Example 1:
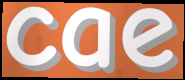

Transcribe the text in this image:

cae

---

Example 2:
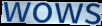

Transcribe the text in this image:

wows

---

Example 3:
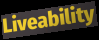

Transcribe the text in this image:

Liveability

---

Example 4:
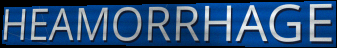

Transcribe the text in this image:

HEAMORRHAGE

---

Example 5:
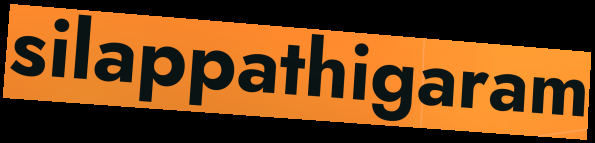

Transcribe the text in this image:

silappathigaram